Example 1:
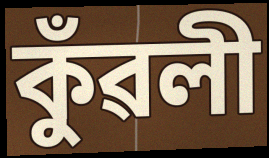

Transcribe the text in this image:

কুঁৱলী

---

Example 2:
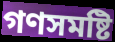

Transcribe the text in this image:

গণসমষ্টি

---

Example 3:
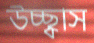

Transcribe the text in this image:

উচ্ছ্বাস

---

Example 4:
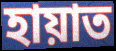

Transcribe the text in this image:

হায়াত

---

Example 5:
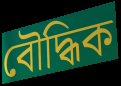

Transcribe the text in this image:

বৌদ্ধিক